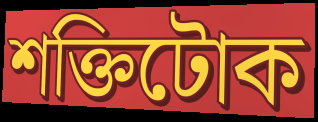
শক্তিটোক